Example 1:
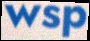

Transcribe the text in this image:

wsp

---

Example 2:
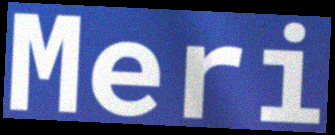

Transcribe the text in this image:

Meri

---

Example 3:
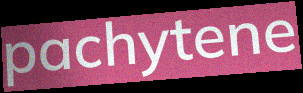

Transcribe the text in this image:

pachytene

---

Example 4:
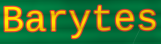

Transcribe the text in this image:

Barytes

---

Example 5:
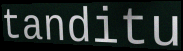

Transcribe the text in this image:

tanditu